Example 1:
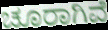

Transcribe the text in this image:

ಚೂರಾಗಿವೆ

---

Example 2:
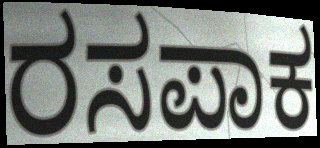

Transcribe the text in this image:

ರಸಪಾಕ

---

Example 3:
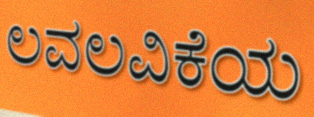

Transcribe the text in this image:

ಲವಲವಿಕೆಯ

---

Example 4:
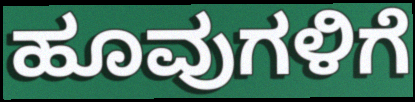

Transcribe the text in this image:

ಹೂವುಗಳಿಗೆ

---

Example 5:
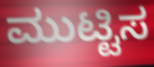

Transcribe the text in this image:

ಮುಟ್ಟಿಸ